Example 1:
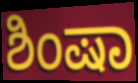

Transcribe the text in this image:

ಶಿಂಷಾ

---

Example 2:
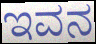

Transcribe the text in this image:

ಇವನ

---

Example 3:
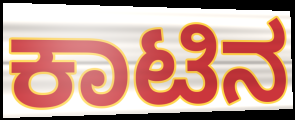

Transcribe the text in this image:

ಕಾಟಿನ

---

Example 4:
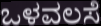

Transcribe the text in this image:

ಒಳವಲಸೆ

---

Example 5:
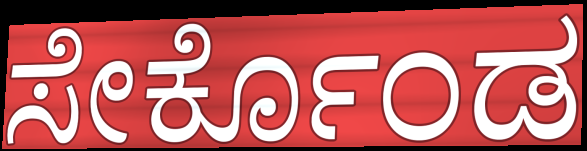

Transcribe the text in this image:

ಸೇರ್ಕೊಂಡ